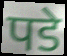
पडे